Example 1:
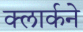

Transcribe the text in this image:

क्लार्कने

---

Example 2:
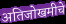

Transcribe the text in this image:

अतिजोखमीचे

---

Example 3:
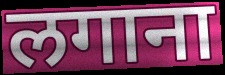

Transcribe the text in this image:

लगाना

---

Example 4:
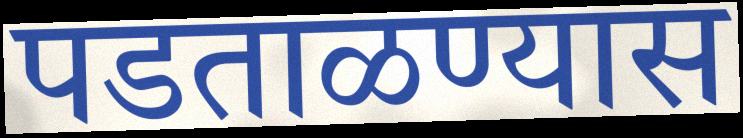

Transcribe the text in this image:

पडताळण्यास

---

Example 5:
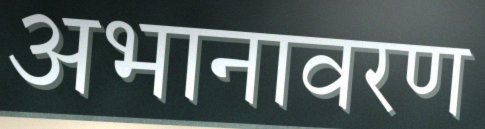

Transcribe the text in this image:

अभानावरण